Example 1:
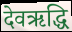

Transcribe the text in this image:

देवऋद्धि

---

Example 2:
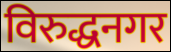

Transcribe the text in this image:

विरुद्धनगर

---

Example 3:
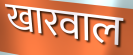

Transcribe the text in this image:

खारवाल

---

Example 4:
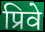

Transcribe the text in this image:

प्रिवे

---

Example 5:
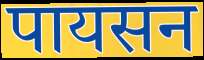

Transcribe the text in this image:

पायसन